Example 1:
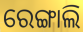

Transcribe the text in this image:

ରେଙ୍ଗାଲି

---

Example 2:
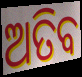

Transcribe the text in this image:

ଅତିବ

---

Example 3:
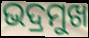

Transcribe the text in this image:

ଭଦ୍ରମୁଖ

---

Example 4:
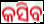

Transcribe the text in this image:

କସିବ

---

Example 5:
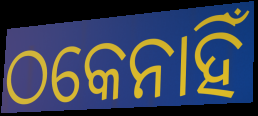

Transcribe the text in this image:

ଠକେନାହିଁ